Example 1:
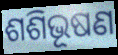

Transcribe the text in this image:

ଶଶିଭୂଷଣ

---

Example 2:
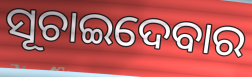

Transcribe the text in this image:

ସୂଚାଇଦେବାର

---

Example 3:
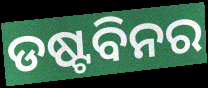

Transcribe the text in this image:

ଡଷ୍ଟବିନର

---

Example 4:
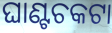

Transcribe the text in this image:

ଘାଣ୍ଟଚକଟା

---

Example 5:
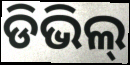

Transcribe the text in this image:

ଡିଭିଲ୍